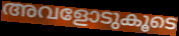
അവളോടുകൂടെ